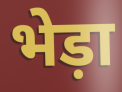
भेड़ा